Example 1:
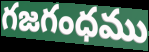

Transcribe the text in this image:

గజగంధము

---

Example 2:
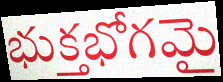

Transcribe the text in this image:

భుక్తభోగమై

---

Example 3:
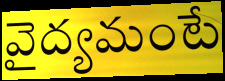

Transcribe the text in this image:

వైద్యమంటే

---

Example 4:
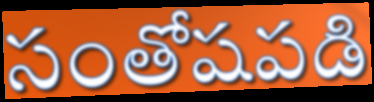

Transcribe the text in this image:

సంతోషపడి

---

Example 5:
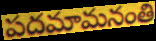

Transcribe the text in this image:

పదమామనంతి